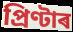
প্ৰিণ্টাৰ